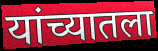
यांच्यातला